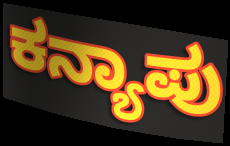
ಕನ್ಯಾಪು